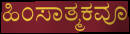
ಹಿಂಸಾತ್ಮಕವೂ